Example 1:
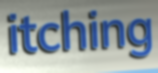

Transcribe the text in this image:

itching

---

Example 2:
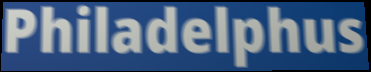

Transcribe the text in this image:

Philadelphus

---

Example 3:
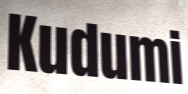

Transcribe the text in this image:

Kudumi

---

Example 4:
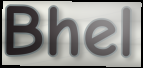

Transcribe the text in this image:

Bhel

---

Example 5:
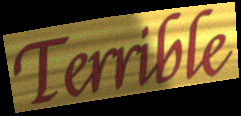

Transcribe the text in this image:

Terrible